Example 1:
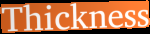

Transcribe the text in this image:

Thickness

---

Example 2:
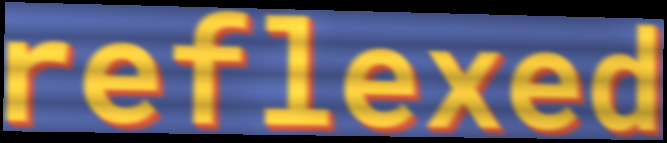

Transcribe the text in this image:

reflexed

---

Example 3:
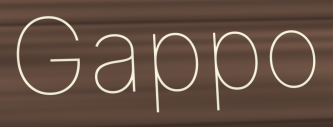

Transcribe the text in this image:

Gappo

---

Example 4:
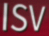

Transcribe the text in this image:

ISV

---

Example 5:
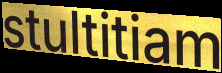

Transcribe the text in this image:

stultitiam